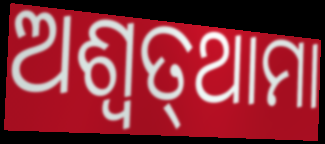
ଅଶ୍ବତ୍‌ଥାମା